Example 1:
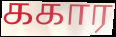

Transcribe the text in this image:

ககார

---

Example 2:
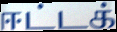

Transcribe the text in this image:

ஈட்டக்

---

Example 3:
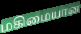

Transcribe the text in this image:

மகிமையான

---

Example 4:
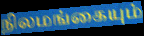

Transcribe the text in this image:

நிலமங்கையும்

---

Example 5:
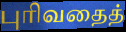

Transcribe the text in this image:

புரிவதைத்